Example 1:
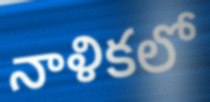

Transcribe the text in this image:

నాళికలో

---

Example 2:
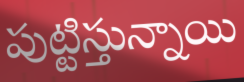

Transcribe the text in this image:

పుట్టిస్తున్నాయి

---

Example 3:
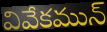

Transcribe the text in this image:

వివేకమున్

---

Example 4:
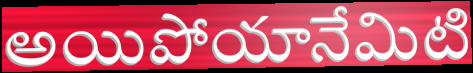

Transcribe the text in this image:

అయిపోయానేమిటి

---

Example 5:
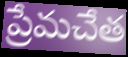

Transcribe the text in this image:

ప్రేమచేత